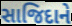
સાજિદાને